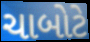
ચાબોટે